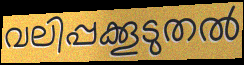
വലിപ്പക്കൂടുതൽ